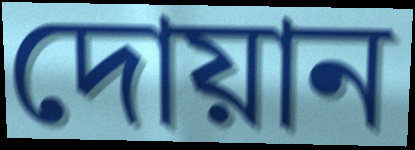
দোয়ান